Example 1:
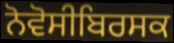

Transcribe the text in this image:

ਨੋਵੋਸੀਬਿਰਸਕ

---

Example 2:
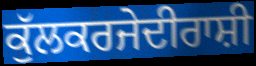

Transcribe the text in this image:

ਕੁੱਲਕਰਜੇਦੀਰਾਸ਼ੀ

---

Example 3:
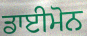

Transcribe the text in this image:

ਡਾਈਮੋਨ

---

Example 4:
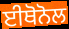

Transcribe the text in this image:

ਈਥੋਨੋਲ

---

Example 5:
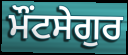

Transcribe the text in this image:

ਮੌਂਟਸੇਗੁਰ